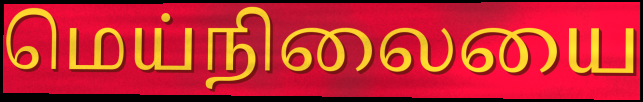
மெய்நிலையை